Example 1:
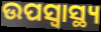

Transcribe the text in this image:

ଉପସ୍ୱାସ୍ଥ୍ୟ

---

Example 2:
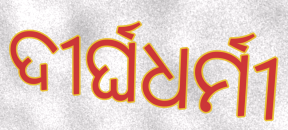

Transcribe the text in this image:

ଦୀର୍ଘଧର୍ମୀ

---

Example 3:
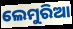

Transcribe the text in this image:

ଲେମୁରିଆ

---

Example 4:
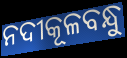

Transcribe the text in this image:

ନଦୀକୂଳବନ୍ଧୁ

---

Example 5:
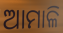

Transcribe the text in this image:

ଆମାଳି